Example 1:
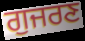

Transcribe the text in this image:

ਗੁਜਰਣ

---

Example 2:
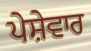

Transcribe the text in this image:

ਪੇਸ਼ੇਵਾਰ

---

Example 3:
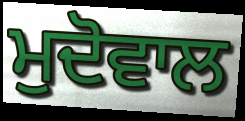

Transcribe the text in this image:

ਮੁਦੋਵਾਲ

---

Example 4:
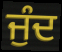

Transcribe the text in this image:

ਜੁੰਦ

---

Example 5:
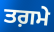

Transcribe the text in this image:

ਤਗ਼ਮੇ